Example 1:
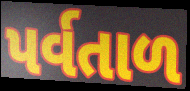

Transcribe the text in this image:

પર્વતાળ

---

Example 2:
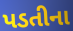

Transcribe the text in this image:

પડતીના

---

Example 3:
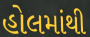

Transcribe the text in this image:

હોલમાંથી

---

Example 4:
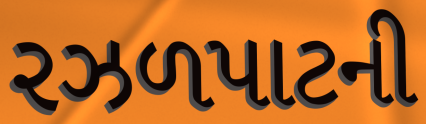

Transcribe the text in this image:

રઝળપાટની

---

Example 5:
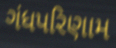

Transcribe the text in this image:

ગંધપરિણામ